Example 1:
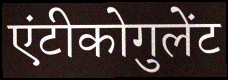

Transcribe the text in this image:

एंटीकोगुलेंट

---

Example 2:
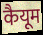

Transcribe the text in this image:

कैयूम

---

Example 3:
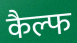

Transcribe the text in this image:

कैल्फ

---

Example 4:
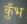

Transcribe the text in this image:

कुँभ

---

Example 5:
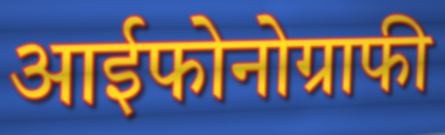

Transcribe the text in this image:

आईफोनोग्राफी